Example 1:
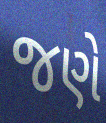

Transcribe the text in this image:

જણે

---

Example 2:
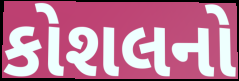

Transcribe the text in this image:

કોશલનો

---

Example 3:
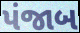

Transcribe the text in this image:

પંજાબ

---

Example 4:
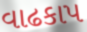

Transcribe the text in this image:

વાઢકાપ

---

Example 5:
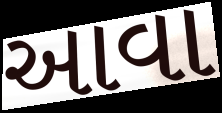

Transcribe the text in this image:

આવા